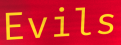
Evils